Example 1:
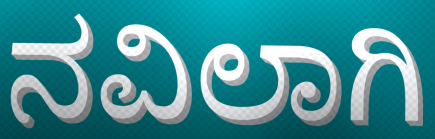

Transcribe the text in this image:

ನವಿಲಾಗಿ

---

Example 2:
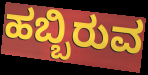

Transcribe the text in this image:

ಹಬ್ಬಿರುವ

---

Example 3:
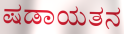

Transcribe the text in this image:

ಷಡಾಯತನ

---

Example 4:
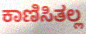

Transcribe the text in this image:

ಕಾಣಿಸಿತಲ್ಲ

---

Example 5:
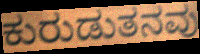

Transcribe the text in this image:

ಕುರುಡುತನವು